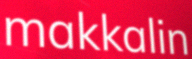
makkalin